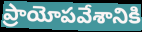
ప్రాయోపవేశానికి